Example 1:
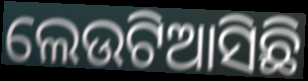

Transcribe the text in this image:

ଲେଉଟିଆସିଛି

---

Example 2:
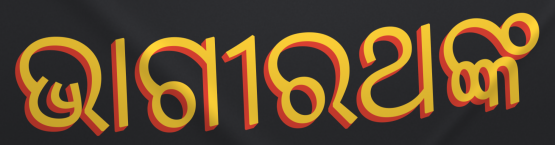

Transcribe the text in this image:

ଭାଗୀରଥଙ୍କ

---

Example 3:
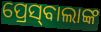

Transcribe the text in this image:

ପ୍ରେସ୍‌ବାଲାଙ୍କ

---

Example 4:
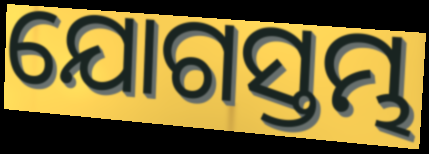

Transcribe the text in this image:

ଯୋଗସ୍ତମ୍ଭ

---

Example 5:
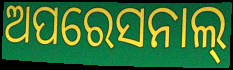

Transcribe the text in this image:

ଅପରେସନାଲ୍